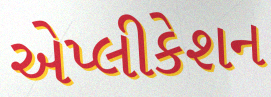
એપ્લીકેશન